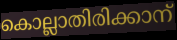
കൊല്ലാതിരിക്കാന്